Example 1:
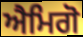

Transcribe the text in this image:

ਐਮਿਗੋ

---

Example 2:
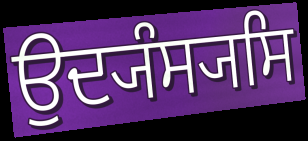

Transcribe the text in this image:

ਉਦ੍ਯੰਸ੍ਯਸਿ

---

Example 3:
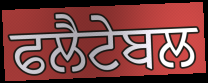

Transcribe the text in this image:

ਫਲੈਟੇਬਲ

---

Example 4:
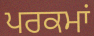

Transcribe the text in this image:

ਪਰਕਮਾਂ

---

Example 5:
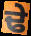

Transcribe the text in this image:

ਢੇ